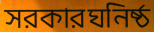
সরকারঘনিষ্ঠ